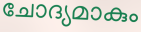
ചോദ്യമാകും